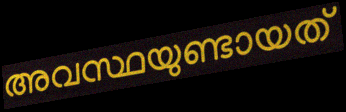
അവസ്ഥയുണ്ടായത്